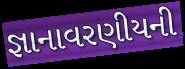
જ્ઞાનાવરણીયની